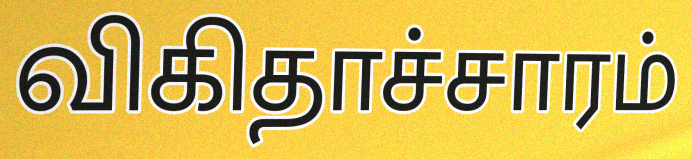
விகிதாச்சாரம்